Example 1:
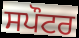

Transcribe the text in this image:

ਸਪੌਟਰ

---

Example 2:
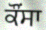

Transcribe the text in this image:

ਕੌਂਸਾ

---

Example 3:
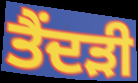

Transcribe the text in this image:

ਤੈਂਦੜੀ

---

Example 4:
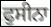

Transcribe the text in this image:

ਫੁਸੀਨਾ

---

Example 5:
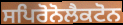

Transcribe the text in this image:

ਸਪਿਰੋਨੋਲੈਕਟੋਨ